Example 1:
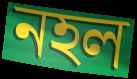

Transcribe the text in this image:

নহল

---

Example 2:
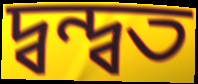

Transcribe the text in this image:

দ্বন্দ্বত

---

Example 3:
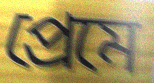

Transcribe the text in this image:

প্ৰেমে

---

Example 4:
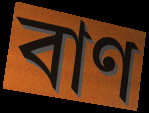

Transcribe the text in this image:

বাণ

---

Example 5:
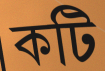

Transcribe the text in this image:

কটি